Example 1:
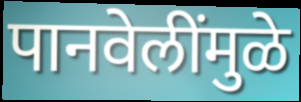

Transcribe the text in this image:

पानवेलींमुळे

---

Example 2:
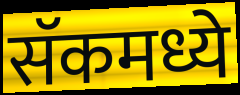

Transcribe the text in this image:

सॅकमध्ये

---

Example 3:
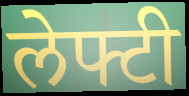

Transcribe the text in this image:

लेफ्टी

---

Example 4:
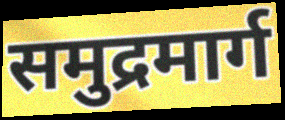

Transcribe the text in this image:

समुद्रमार्ग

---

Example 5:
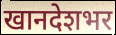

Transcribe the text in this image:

खानदेशभर